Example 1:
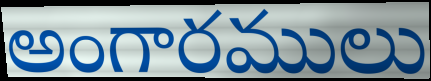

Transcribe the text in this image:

అంగారములు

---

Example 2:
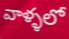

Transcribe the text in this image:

వాళ్ళలో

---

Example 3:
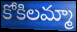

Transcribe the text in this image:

కోకిలమ్మా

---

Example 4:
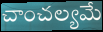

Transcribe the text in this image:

చాంచల్యమే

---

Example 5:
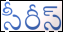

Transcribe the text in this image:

సీరీస్